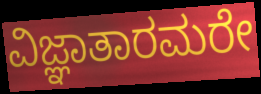
ವಿಜ್ಞಾತಾರಮರೇ